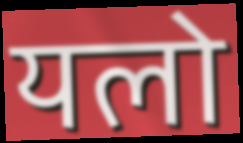
यलो